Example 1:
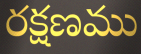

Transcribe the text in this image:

రక్షణము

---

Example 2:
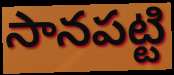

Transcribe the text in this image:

సానపట్టి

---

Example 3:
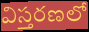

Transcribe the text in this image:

విస్తరణలో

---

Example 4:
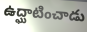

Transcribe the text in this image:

ఉద్ఘాటించాడు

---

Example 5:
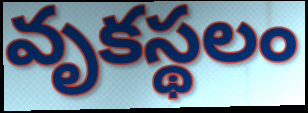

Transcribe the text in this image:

వృకస్థలం